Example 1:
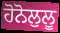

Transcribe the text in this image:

ਹੋਨੋਲੁਲੂ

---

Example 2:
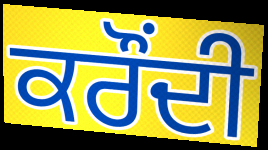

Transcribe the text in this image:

ਕਰੌਂਦੀ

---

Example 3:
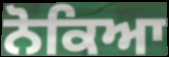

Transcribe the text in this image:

ਨੋਕਿਆ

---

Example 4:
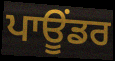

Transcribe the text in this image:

ਪਾਊਂਡਰ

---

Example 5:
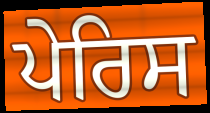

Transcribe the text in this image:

ਪੇਰਿਸ